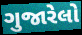
ગુજારેલો